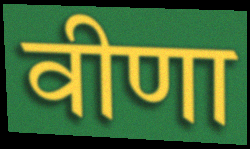
वीणा